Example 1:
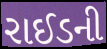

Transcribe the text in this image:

રાઈડની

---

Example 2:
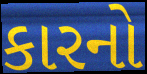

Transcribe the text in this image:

કારનો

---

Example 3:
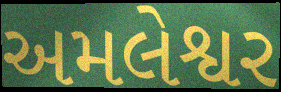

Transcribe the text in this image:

અમલેશ્વર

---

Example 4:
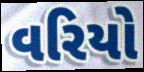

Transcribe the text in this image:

વરિયો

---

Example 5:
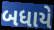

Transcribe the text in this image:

બધાયે